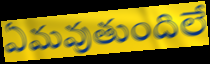
ఏమవుతుందిలే